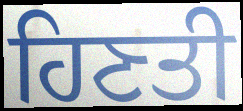
ਹਿਣਤੀ